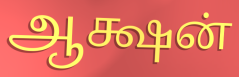
ஆக்ஷன்